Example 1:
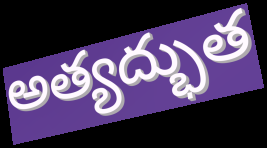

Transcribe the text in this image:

అత్యద్భుత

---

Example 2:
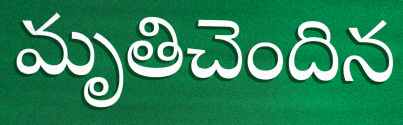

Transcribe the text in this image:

మృతిచెందిన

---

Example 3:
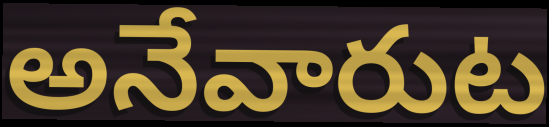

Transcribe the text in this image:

అనేవారుట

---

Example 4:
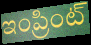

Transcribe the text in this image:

ఇంప్రింట్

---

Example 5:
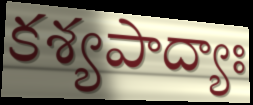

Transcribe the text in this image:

కశ్యపాద్యాః